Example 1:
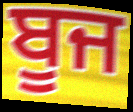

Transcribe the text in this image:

ਬੂਜ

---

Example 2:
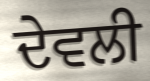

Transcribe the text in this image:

ਦੇਵਲੀ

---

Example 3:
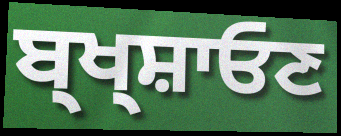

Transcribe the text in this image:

ਬ੍ਖ੍ਸ਼ਾਓਣ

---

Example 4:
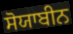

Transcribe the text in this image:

ਸੋਯਾਬੀਨ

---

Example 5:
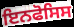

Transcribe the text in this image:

ਇਨਫੋਸਿਸ